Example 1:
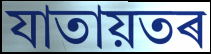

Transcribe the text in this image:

যাতায়তৰ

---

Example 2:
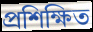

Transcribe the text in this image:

প্ৰশিক্ষিত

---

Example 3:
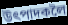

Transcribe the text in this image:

উৎপাদকলৈ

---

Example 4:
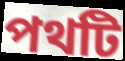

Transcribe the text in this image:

পথটি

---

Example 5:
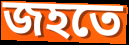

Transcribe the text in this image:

জহতে